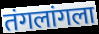
तंगलांगला